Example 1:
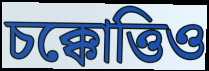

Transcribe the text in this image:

চক্কোত্তিও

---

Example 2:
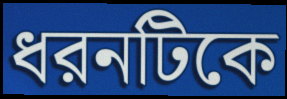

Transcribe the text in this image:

ধরনটিকে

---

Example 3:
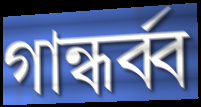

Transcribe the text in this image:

গান্ধর্ব্ব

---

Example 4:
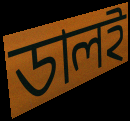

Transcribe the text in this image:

ডালই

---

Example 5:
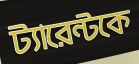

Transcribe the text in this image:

ট্যারেন্টকে